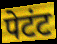
पेटंट